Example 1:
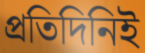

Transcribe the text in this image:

প্রতিদিনিই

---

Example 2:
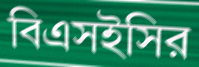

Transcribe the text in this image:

বিএসইসির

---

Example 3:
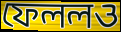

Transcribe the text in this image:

ফেললও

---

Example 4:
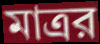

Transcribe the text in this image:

মাত্রর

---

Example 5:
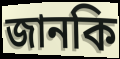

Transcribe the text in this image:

জানকি